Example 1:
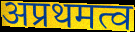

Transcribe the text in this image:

अप्रथमत्व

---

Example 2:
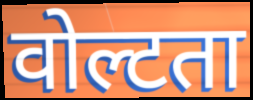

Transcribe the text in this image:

वोल्टता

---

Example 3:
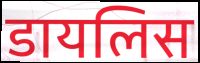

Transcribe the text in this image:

डायलिस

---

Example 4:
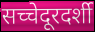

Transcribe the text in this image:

सच्चेदूरदर्शी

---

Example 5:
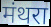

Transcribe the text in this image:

मंथरा